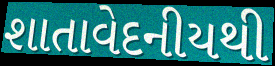
શાતાવેદનીયથી